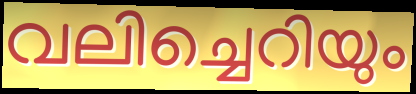
വലിച്ചെറിയും